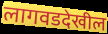
लागवडदेखील